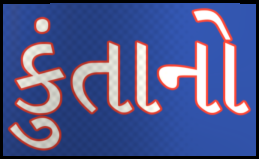
કુંતાનો